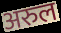
अरुल